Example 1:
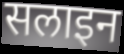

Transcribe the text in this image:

सलाइन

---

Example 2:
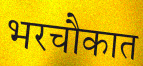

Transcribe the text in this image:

भरचौकात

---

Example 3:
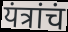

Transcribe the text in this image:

यंत्रांचं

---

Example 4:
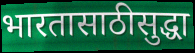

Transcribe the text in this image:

भारतासाठीसुद्धा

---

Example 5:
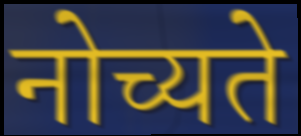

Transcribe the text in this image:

नोच्यते